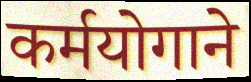
कर्मयोगाने